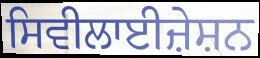
ਸਿਵੀਲਾਈਜ਼ੇਸ਼ਨ